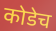
कोडेच